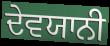
ਦੇਵਯਾਨੀ